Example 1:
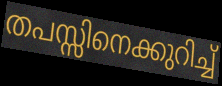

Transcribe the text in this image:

തപസ്സിനെക്കുറിച്ച്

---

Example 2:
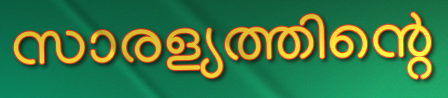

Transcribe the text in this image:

സാരള്യത്തിന്റെ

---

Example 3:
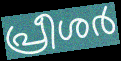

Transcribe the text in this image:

പ്രീശർ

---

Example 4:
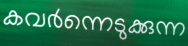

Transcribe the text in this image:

കവർന്നെടുക്കുന്ന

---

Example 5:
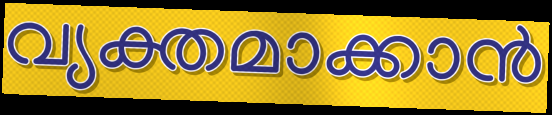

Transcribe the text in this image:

വ്യക്തമാക്കാൻ